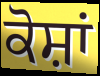
ਕੋਸ਼ਾਂ